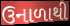
ઉનાળાથી